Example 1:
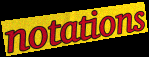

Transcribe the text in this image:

notations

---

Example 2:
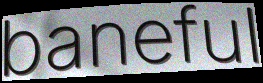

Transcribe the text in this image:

baneful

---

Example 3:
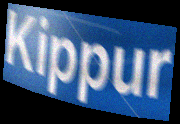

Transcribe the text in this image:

Kippur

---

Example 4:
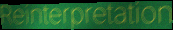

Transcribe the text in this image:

Reinterpretation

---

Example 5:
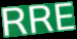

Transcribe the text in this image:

RRE